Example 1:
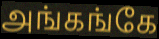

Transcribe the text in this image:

அங்கங்கே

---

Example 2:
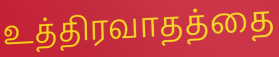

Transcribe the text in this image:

உத்திரவாதத்தை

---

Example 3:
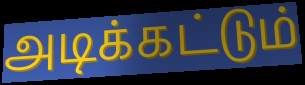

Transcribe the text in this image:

அடிக்கட்டும்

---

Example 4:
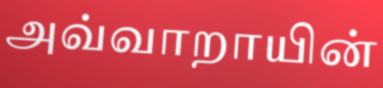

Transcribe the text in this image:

அவ்வாறாயின்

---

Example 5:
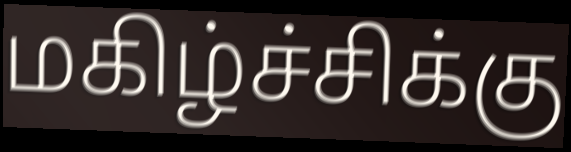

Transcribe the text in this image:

மகிழ்ச்சிக்கு